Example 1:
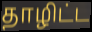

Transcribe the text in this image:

தாழிட்ட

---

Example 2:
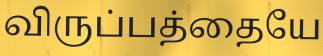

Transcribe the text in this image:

விருப்பத்தையே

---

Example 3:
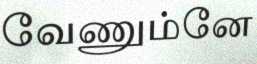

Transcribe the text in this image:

வேணும்னே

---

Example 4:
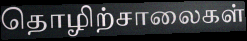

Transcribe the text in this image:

தொழிற்சாலைகள்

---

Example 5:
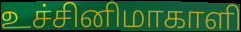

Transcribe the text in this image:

உச்சினிமாகாளி